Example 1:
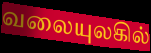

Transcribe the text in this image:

வலையுலகில்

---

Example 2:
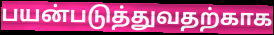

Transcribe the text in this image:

பயன்படுத்துவதற்காக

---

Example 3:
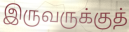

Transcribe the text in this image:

இருவருக்குத்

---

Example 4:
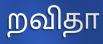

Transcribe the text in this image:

றவிதா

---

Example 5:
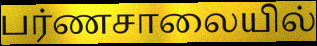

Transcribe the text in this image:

பர்ணசாலையில்